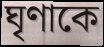
ঘৃণাকে